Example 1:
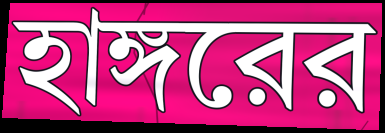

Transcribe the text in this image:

হাঙ্গরের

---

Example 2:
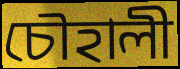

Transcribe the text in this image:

চৌহালী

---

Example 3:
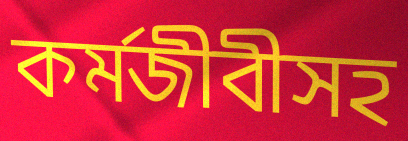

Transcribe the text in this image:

কর্মজীবীসহ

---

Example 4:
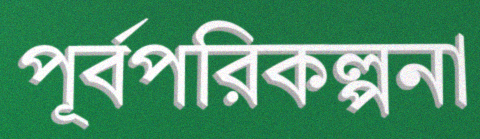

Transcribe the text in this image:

পূর্বপরিকল্পনা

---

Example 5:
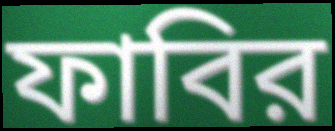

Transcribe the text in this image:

ফাবির